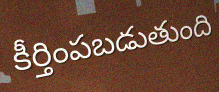
కీర్తింపబడుతుంది